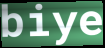
biye